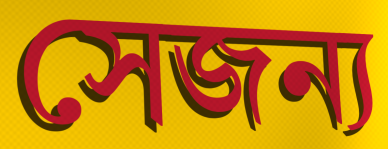
সেজন্য